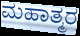
ಮಹಾತ್ಮರ